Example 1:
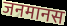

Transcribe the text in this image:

जनमानस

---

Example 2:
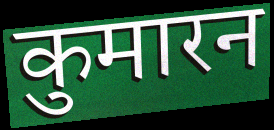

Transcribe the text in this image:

कुमारन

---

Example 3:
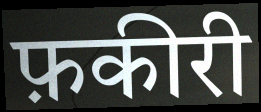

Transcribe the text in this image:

फ़कीरी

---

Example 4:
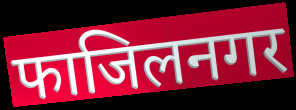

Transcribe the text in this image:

फाजिलनगर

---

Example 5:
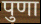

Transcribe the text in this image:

पुणा